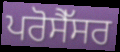
ਪਰੋਸੈੱਸਰ